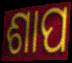
ଶାପ